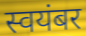
स्वयंबर